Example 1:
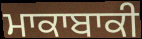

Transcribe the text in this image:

ਮਾਕਾਬਾਕੀ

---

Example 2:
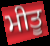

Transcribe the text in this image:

ਮੀਤੂ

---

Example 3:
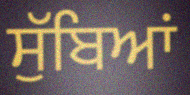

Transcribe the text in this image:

ਸੁੱਬਿਆਂ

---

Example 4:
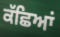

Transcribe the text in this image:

ਕੱਛਿਆਂ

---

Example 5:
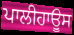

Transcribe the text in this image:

ਪਾਲੀਹਾਊਸ